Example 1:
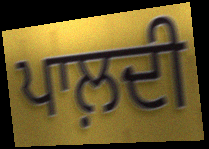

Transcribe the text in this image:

ਪਾਲ਼ਦੀ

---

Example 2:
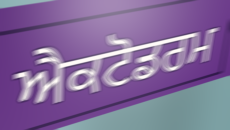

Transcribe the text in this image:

ਐਕਟੋਡਰਮ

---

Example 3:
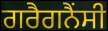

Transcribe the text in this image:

ਗਰੈਗਨੈਂਸੀ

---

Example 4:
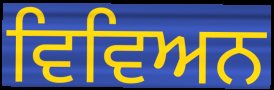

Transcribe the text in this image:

ਵਿਵਿਅਨ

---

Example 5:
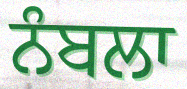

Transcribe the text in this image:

ਨੰਬਲਾ